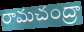
రామచంద్రా